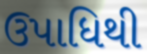
ઉપાધિથી